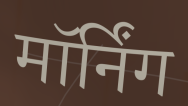
मॉर्निंग